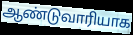
ஆண்டுவாரியாக